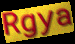
Rgya